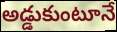
అడ్డుకుంటూనే